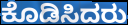
ಕೊಡಿಸಿದರು